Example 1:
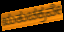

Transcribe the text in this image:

ಋತುಚಕ್ರವೇ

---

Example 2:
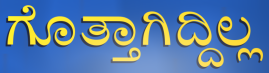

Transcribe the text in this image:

ಗೊತ್ತಾಗಿದ್ದಿಲ್ಲ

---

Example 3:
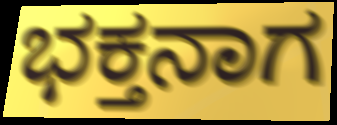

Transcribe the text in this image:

ಭಕ್ತನಾಗ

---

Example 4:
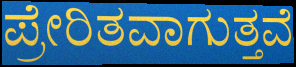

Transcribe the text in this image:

ಪ್ರೇರಿತವಾಗುತ್ತವೆ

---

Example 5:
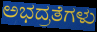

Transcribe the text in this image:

ಅಭದ್ರತೆಗಳು